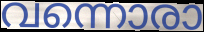
വന്നൊരാ